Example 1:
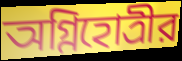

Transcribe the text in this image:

অগ্নিহোত্রীর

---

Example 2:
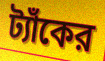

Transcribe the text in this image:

ট্যাঁকের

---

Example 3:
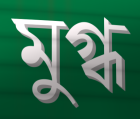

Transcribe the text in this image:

মুগ্ধ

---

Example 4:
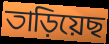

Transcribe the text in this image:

তাড়িয়েছ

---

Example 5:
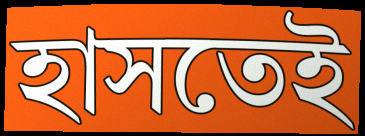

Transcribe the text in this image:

হাসতেই